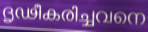
ദൃഢീകരിച്ചവനെ